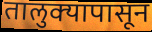
तालुक्यापासून